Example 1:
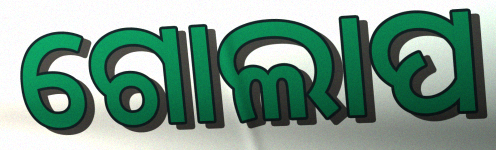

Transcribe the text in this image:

ଗୋଲାପ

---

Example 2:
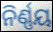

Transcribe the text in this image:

ନିର୍ଣ୍ଣୟ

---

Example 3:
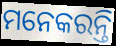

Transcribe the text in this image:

ମନେକରନ୍ତି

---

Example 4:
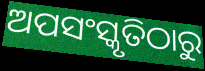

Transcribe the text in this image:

ଅପସଂସ୍କୃତିଠାରୁ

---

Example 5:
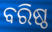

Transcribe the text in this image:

ବରିଷ୍ଠ